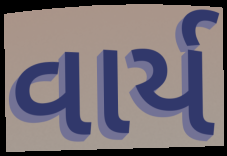
વાર્ય